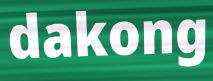
dakong